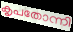
കൃപതോന്നി